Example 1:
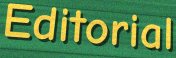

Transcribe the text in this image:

Editorial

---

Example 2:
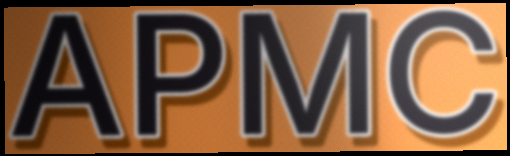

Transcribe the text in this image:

APMC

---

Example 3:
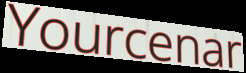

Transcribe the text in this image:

Yourcenar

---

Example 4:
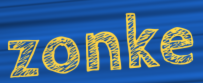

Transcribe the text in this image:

zonke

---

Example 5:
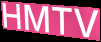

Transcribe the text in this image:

HMTV